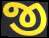
જી